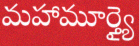
మహామూర్త్యై